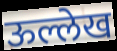
ऊल्लेख